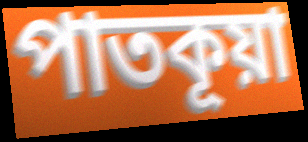
পাতকূয়া